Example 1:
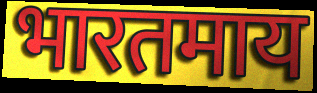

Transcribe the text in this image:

भारतमाय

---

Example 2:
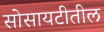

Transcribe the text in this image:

सोसायटीतील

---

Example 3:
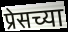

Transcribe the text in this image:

प्रेसच्या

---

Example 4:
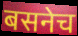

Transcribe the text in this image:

बसनेच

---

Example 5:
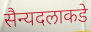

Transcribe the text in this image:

सैन्यदलाकडे